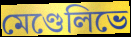
মেণ্ডেলিভে